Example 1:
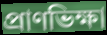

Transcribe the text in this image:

প্রাণভিক্ষা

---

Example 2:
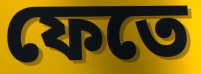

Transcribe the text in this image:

ফেতে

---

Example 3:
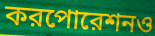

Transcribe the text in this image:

করপোরেশনও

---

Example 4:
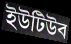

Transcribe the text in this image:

ইউটিউব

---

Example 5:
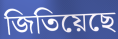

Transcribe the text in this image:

জিতিয়েছে